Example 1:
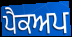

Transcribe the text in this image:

ਪੈਕਅਪ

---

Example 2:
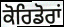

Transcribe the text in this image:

ਕੋਰਿਡੋਰਾਂ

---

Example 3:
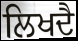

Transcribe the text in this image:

ਲਿਖਦੈ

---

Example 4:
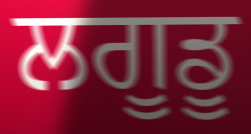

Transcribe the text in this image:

ਲਗੂਡੂ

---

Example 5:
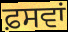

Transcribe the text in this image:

ਫ਼ਸਵਾਂ